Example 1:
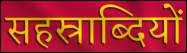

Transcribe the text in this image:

सहस्राब्दियों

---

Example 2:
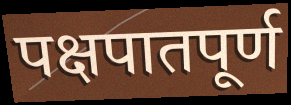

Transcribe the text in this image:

पक्षपातपूर्ण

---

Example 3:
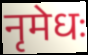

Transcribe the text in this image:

नृमेधः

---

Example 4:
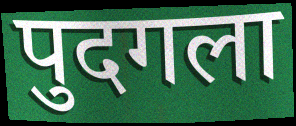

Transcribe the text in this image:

पुदगला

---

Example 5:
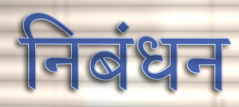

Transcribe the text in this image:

निबंधन